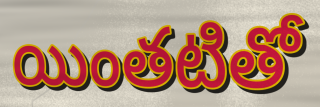
యింతటితో